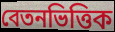
বেতনভিত্তিক